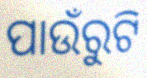
ପାଉଁରୁଟି